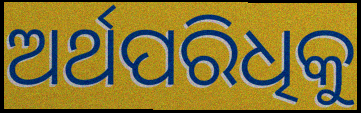
ଅର୍ଥପରିଧିକୁ